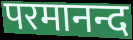
परमानन्द